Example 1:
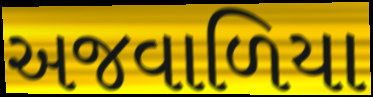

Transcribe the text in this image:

અજવાળિયા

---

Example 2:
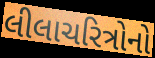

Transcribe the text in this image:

લીલાચરિત્રોનો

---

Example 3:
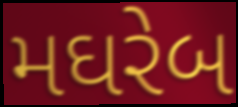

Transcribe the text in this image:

મઘરેબ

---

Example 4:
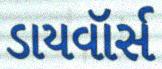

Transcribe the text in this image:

ડાયવૉર્સ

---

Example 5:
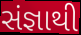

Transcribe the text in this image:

સંજ્ઞાથી